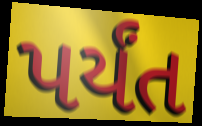
પર્યંત